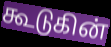
கூடுகின்